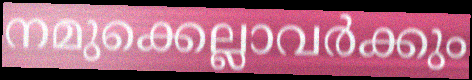
നമുക്കെല്ലാവർക്കും